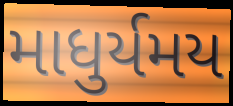
માધુર્યમય